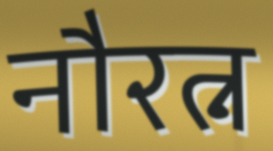
नौरत्न